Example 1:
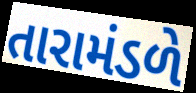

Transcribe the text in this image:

તારામંડળે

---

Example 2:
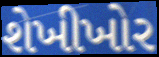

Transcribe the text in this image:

શેખીખોર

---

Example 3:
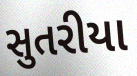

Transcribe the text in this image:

સુતરીયા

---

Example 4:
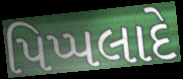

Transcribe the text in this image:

પિપ્પલાદે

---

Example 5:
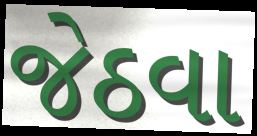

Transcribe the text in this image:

જેઠવા